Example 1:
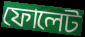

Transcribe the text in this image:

ফোলেট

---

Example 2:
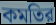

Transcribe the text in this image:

কমতির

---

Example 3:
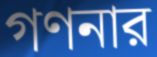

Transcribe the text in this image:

গণনার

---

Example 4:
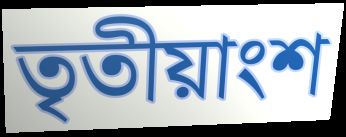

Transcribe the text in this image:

তৃতীয়াংশ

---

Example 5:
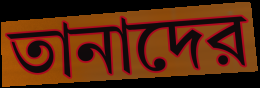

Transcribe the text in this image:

তানাদের